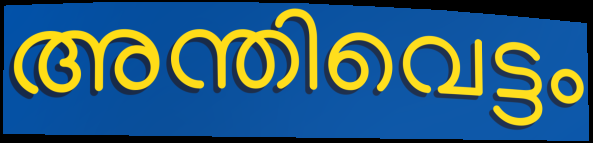
അന്തിവെട്ടം